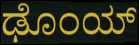
ಢೊಂಯ್